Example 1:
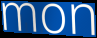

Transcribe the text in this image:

mon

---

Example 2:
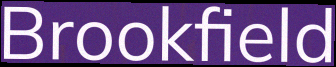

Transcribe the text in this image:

Brookfield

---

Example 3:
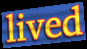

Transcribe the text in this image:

lived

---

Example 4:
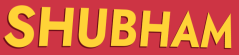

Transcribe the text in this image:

SHUBHAM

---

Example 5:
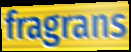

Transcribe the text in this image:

fragrans